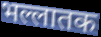
भल्लातक